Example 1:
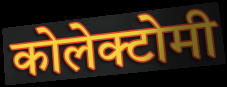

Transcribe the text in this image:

कोलेक्टोमी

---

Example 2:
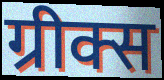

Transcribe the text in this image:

ग्रीक्स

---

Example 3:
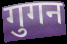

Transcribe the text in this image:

गुगन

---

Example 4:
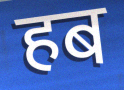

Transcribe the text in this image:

हब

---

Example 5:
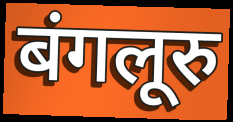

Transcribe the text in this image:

बंगलूरु